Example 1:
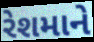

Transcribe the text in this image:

રેશમાને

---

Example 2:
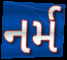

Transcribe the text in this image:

નર્મ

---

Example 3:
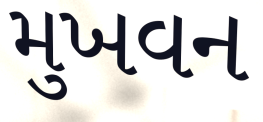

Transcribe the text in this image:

મુખવન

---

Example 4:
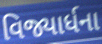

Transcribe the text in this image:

વિજ્યાર્ધના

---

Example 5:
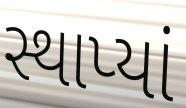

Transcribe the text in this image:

સ્થાપ્યાં